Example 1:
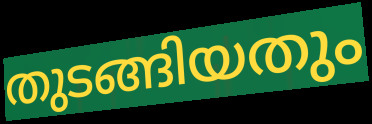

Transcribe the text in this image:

തുടങ്ങിയതും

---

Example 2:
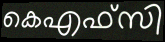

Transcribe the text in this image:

കെഎഫ്സി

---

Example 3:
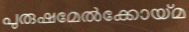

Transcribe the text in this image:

പുരുഷമേൽക്കോയ്മ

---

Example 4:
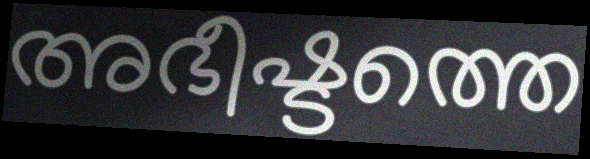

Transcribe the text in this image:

അഭീഷ്ടത്തെ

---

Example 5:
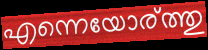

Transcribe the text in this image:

എന്നെയോര്ത്തു